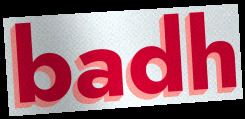
badh